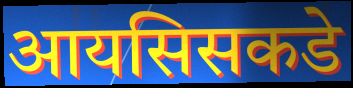
आयसिसकडे